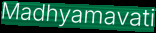
Madhyamavati